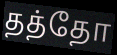
தத்தோ